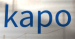
kapo